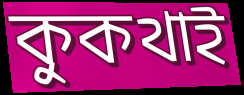
কুকথাই